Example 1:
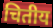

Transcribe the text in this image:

चितीय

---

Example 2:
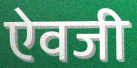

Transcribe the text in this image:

ऐवजी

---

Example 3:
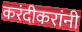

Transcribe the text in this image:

करंदीकरांनी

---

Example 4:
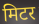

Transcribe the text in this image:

मिटर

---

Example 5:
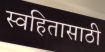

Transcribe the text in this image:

स्वहितासाठी